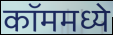
कॉममध्ये